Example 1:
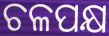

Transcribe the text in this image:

ଚଳପକ୍ଷ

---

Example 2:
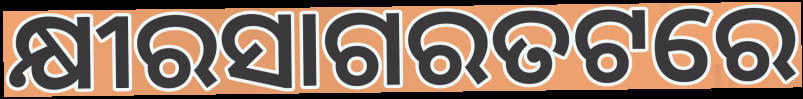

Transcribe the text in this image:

କ୍ଷୀରସାଗରତଟରେ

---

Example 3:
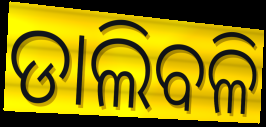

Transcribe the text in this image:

ଡାଲିବଳି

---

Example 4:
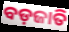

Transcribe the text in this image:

ବଡ଼ଜାତି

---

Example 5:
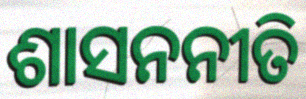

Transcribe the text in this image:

ଶାସନନୀତି